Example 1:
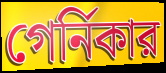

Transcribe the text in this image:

গের্নিকার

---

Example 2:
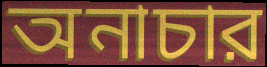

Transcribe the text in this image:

অনাচার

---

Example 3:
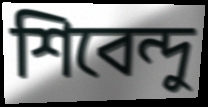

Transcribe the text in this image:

শিবেন্দু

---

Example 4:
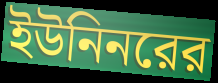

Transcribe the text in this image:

ইউনিনরের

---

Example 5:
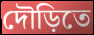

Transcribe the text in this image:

দৌড়িতে